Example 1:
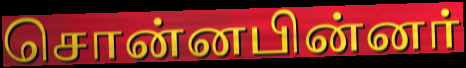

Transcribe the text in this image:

சொன்னபின்னர்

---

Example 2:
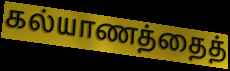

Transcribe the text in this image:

கல்யாணத்தைத்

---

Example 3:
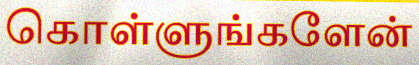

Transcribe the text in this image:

கொள்ளுங்களேன்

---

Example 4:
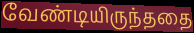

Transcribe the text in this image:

வேண்டியிருந்ததை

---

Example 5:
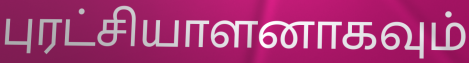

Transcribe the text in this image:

புரட்சியாளனாகவும்